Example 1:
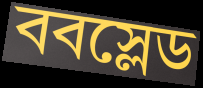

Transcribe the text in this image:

ববস্লেড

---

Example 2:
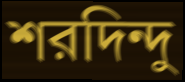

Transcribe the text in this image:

শরদিন্দু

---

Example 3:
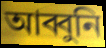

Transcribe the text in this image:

আব্বুনি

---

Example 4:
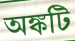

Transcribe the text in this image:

অঙ্কটি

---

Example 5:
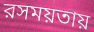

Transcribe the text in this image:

রসময়তায়